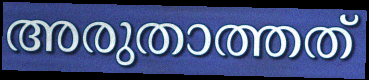
അരുതാത്തത്